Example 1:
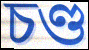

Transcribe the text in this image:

চণ্ড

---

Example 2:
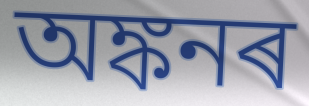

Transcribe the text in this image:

অঙ্কনৰ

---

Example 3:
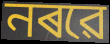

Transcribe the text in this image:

নৰৱে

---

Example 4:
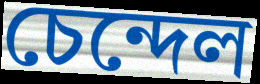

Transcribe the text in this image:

চেন্দেল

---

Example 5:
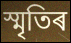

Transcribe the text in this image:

স্মৃতিৰ